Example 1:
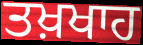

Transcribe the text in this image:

ਤਖ਼ਖਾਹ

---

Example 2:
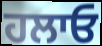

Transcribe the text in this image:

ਹਲਾਓ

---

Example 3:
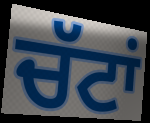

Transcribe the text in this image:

ਚੱਟਾਂ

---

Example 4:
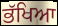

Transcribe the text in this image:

ਭੱਖਿਆ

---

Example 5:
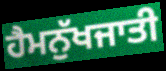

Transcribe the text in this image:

ਹੈਮਨੁੱਖਜਾਤੀ